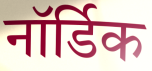
नॉर्डिक